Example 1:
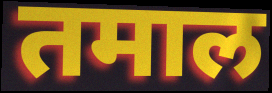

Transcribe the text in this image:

तमाल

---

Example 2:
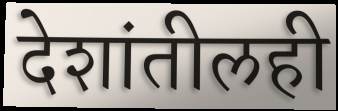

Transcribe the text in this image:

देशांतीलही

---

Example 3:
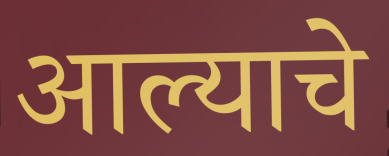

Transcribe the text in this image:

आल्याचे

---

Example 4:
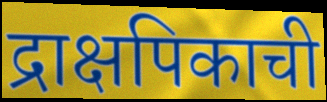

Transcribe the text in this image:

द्राक्षपिकाची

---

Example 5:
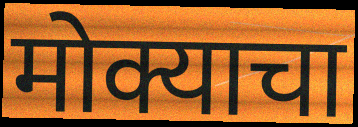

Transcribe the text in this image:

मोक्याचा